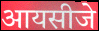
आयसीजे